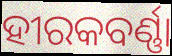
ହୀରକବର୍ଣ୍ଣା